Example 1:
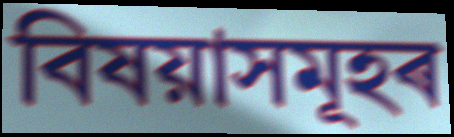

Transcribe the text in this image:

বিষয়াসমূহৰ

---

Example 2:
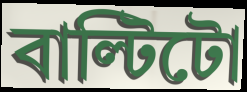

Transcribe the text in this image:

বাল্টিটো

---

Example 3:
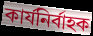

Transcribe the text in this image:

কাৰ্যনিৰ্বাহক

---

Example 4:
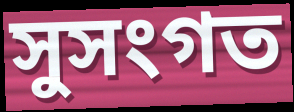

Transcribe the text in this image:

সুসংগত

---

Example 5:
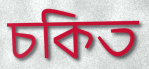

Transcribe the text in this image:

চকিত